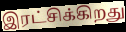
இரட்சிக்கிறது